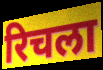
रिचला